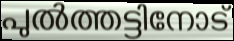
പുൽത്തട്ടിനോട്